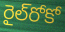
రైల్‌రోకో